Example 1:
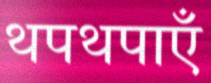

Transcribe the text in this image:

थपथपाएँ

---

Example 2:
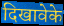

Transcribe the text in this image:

दिखावेके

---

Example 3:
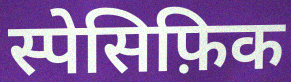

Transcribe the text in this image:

स्पेसिफ़िक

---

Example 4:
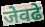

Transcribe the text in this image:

जेवढे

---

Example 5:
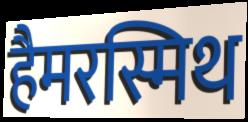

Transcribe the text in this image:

हैमरस्मिथ